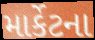
માર્કેટના